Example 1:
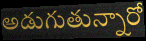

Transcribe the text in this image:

అడుగుతున్నారో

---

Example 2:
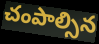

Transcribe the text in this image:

చంపాల్సిన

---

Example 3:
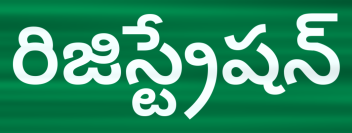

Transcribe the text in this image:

రిజిస్ట్రేషన్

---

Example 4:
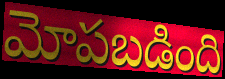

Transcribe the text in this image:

మోపబడింది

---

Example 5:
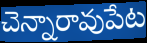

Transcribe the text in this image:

చెన్నారావుపేట